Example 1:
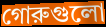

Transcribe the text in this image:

গোরুগুলো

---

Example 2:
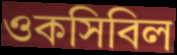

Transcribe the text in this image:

ওকসিবিল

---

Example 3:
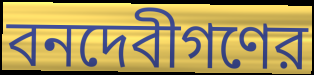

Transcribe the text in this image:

বনদেবীগণের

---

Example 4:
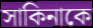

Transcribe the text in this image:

সাকিনাকে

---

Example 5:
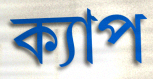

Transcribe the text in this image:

ক্যাপ